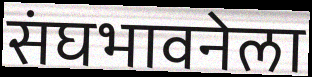
संघभावनेला